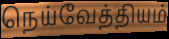
நெய்வேத்தியம்